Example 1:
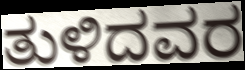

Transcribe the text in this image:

ತುಳಿದವರ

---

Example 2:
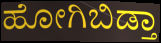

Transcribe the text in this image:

ಹೋಗಿಬಿಡ್ತಾ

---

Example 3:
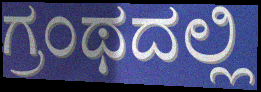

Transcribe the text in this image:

ಗ್ರಂಥದಲ್ಲಿ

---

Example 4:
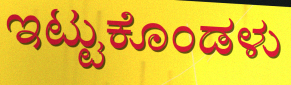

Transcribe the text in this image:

ಇಟ್ಟುಕೊಂಡಳು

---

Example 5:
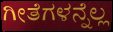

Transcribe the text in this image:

ಗೀತೆಗಳನ್ನೆಲ್ಲ